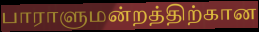
பாராளுமன்றத்திற்கான